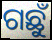
ଗଛୁଁ